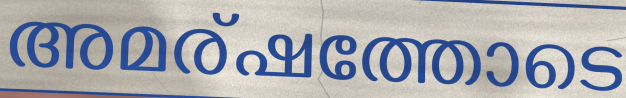
അമര്ഷത്തോടെ